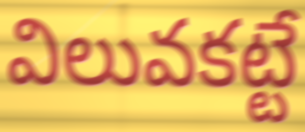
విలువకట్టే